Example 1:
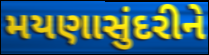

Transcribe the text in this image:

મયણાસુંદરીને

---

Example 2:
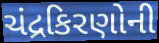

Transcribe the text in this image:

ચંદ્રકિરણોની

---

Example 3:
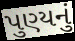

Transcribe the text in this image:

પુણ્યનું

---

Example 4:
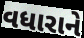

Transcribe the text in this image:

વધારાને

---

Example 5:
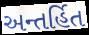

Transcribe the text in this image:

અન્તર્હિત